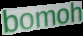
bomoh